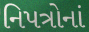
નિપત્રોનાં